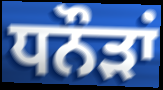
ਧਨੌੜਾਂ